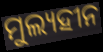
ମୁଲ୍ୟହୀନ